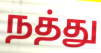
நத்து